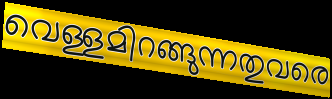
വെള്ളമിറങ്ങുന്നതുവരെ